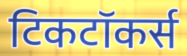
टिकटॉकर्स